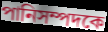
পানিসম্পদকে